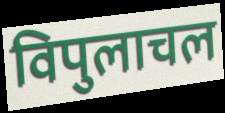
विपुलाचल